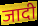
जादी